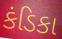
કંડિકા